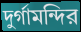
দুর্গামন্দির